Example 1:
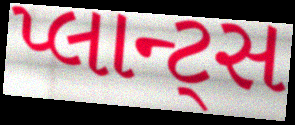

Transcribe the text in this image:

પ્લાન્ટ્સ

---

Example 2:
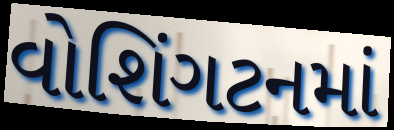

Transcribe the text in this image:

વોશિંગટનમાં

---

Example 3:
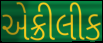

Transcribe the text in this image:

એક્રીલીક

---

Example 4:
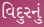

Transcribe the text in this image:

વિદુરનું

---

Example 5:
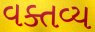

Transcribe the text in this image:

વક્તવ્ય